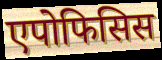
एपोफिसिस